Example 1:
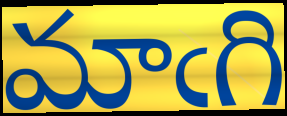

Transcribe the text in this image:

మాఁగి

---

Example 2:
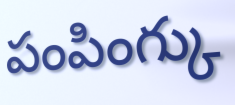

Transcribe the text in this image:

పంపింగ్కు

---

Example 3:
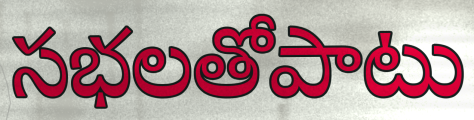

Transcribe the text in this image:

సభలతోపాటు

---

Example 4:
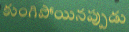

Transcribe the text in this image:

కుంగిపోయినప్పుడు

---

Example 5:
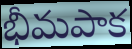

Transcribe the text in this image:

భీమపాక